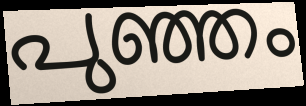
പുഞ്ഞം